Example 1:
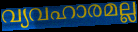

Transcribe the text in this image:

വ്യവഹാരമല്ല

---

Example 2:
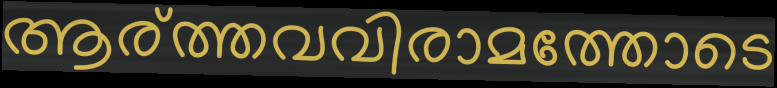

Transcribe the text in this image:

ആര്ത്തവവിരാമത്തോടെ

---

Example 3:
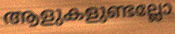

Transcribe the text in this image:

ആളുകളുണ്ടല്ലോ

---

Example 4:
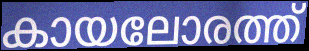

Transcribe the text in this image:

കായലോരത്ത്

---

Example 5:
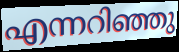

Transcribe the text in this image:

എന്നറിഞ്ഞു